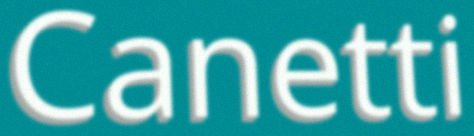
Canetti